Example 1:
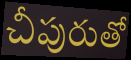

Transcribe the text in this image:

చీపురుతో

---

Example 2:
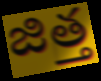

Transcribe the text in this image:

జిత్త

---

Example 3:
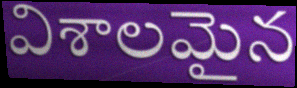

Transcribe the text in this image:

విశాలమైన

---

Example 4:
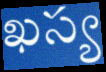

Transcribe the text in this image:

ఖస్య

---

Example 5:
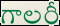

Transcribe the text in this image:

గాలరీ